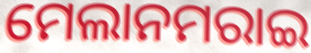
ମେଲାନମରାଇ